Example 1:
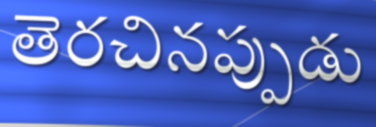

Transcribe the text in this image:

తెరచినప్పుడు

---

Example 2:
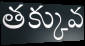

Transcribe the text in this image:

తక్కువ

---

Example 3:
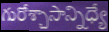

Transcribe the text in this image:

గురోశ్చాసాన్నిధ్యే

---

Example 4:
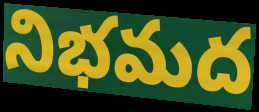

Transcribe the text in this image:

నిభమద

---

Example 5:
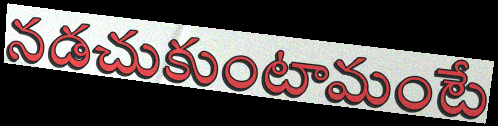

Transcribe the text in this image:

నడచుకుంటామంటే